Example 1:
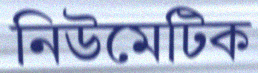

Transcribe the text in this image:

নিউমেটিক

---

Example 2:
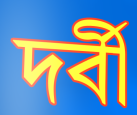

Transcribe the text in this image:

দর্বী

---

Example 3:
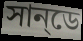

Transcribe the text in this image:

সান্‌ডে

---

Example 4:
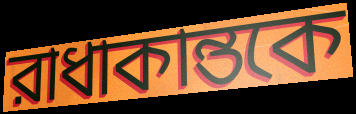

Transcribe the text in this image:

রাধাকান্তকে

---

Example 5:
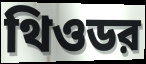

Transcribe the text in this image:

থিওডর